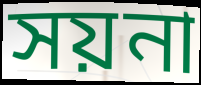
সয়না